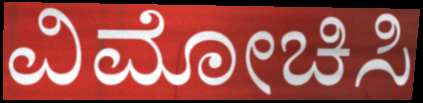
ವಿಮೋಚಿಸಿ